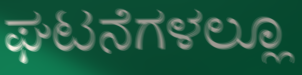
ಘಟನೆಗಳಲ್ಲೂ